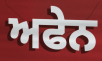
ਅਫੇਨ